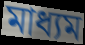
মাধ্যম